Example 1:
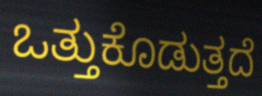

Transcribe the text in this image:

ಒತ್ತುಕೊಡುತ್ತದೆ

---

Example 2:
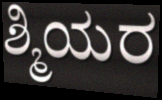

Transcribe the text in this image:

ಶ್ಮಿಯರ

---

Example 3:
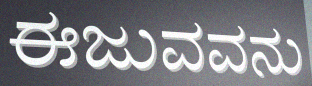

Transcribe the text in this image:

ಈಜುವವನು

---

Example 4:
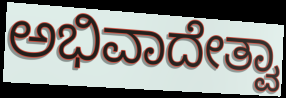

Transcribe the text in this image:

ಅಭಿವಾದೇತ್ವಾ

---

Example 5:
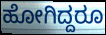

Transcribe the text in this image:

ಹೋಗಿದ್ದರೂ